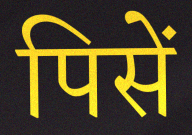
पिसें